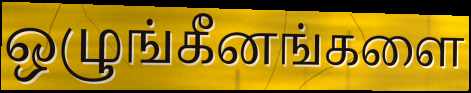
ஒழுங்கீனங்களை